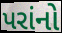
પરાંનો